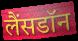
लैंसडॉन